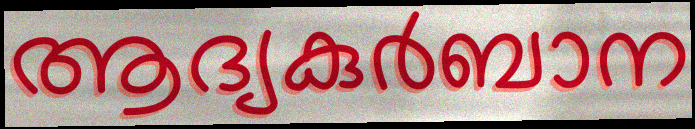
ആദ്യകുർബാന